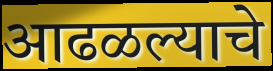
आढळल्याचे